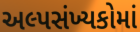
અલ્પસંખ્યકોમાં